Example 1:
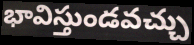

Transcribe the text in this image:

భావిస్తుండవచ్చు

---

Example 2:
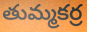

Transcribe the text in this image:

తుమ్మకర్ర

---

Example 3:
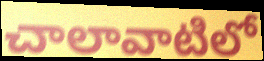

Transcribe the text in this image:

చాలావాటిలో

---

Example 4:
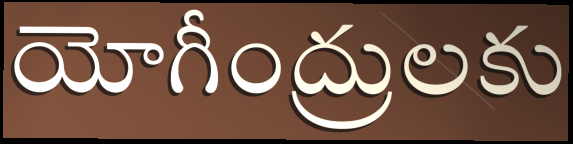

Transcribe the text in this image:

యోగీంద్రులకు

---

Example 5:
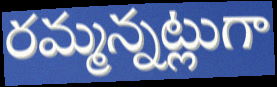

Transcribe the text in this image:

రమ్మన్నట్లుగా